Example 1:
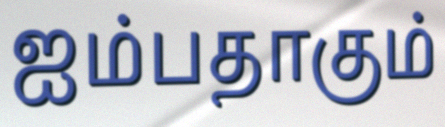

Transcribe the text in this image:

ஐம்பதாகும்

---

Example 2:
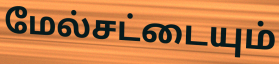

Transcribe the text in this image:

மேல்சட்டையும்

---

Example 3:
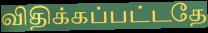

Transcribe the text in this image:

விதிக்கப்பட்டதே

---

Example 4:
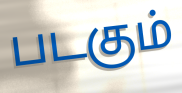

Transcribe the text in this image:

படகும்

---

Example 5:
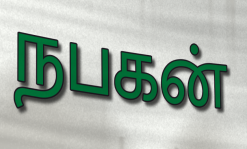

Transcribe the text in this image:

நபகன்